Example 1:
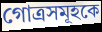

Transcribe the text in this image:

গোত্রসমূহকে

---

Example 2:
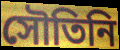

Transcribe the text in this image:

সৌতিনি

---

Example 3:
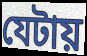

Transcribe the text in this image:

যেটায়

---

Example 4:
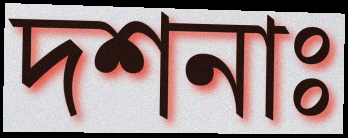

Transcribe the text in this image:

দশনাঃ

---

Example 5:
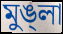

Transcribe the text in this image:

মুঙ্লা